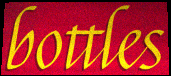
bottles